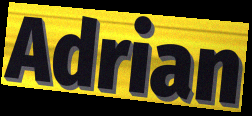
Adrian